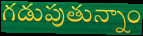
గడుపుతున్నాం